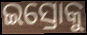
ଇସ୍ରୋକୁ